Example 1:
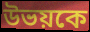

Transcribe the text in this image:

উভয়কে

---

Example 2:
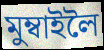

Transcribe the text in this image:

মুম্বাইলৈ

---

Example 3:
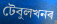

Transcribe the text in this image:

টেবুলখনৰ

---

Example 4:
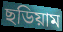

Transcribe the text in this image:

ছডিয়াম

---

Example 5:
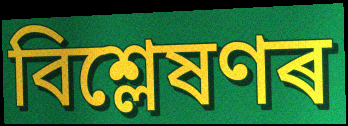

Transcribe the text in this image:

বিশ্লেষণৰ